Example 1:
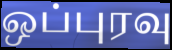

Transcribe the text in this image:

ஒப்புரவு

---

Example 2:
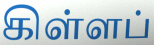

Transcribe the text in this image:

கிள்ளப்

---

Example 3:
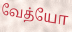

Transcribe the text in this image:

வேத்யோ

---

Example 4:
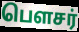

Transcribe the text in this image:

பௌசர்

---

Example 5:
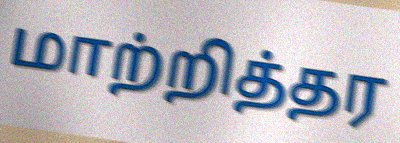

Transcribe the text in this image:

மாற்றித்தர